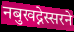
नबुखद्नेस्सरने